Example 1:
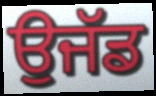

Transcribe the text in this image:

ਉਜੱਡ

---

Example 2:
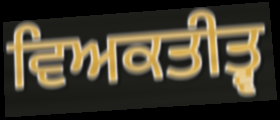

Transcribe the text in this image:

ਵਿਅਕਤੀਤ੍ਵ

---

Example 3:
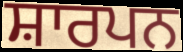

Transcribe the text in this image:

ਸ਼ਾਰਪਨ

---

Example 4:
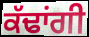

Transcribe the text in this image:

ਕੱਢਾਂਗੀ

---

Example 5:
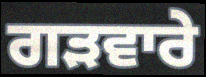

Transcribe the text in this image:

ਗੜਵਾਰੇ